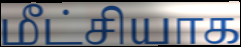
மீட்சியாக